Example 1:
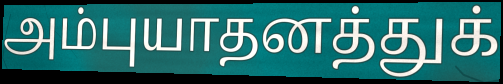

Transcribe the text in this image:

அம்புயாதனத்துக்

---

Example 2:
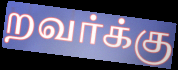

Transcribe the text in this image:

றவர்க்கு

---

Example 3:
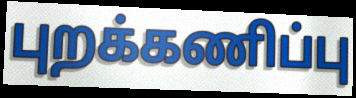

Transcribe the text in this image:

புறக்கணிப்பு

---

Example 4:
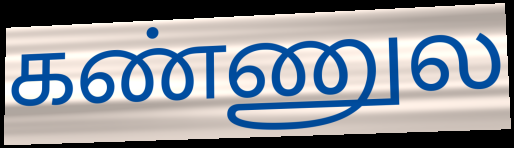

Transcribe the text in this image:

கண்ணுல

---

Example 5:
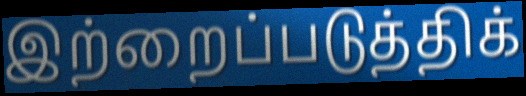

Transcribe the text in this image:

இற்றைப்படுத்திக்